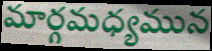
మార్గమధ్యమున